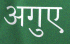
अगुए